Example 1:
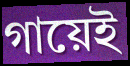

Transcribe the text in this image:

গায়েই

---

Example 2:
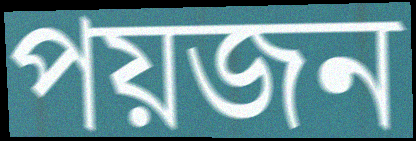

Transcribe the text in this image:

পয়জন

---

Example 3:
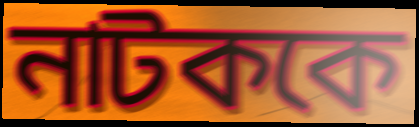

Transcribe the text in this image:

নাটককে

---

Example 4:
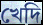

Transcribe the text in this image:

খেদি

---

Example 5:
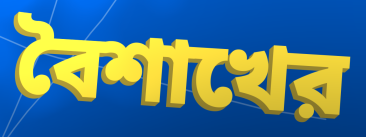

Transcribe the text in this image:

বৈশাখের